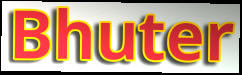
Bhuter